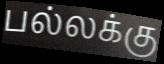
பல்லக்கு